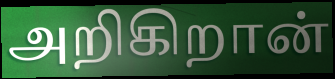
அறிகிறான்